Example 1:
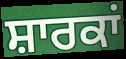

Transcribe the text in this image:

ਸ਼ਾਰਕਾਂ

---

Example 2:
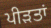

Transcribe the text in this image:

ਪੀੜਤਾਂ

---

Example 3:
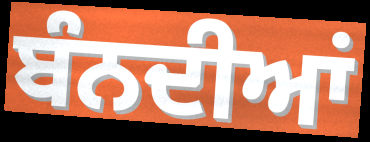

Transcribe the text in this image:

ਬੰਨਦੀਆਂ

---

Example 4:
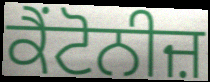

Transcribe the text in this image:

ਕੈਂਟੋਨੀਜ਼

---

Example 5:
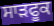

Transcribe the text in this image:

ਸਾੜਫੂਕ